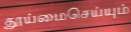
தூய்மைசெய்யும்